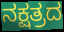
ನಕ್ಷತ್ರದ